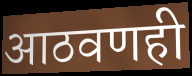
आठवणही